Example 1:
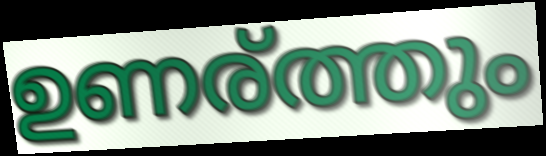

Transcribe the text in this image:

ഉണര്ത്തും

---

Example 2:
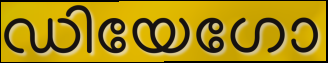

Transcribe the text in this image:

ഡിയേഗോ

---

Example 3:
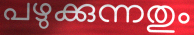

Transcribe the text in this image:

പഴുക്കുന്നതും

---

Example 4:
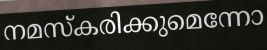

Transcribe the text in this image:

നമസ്കരിക്കുമെന്നോ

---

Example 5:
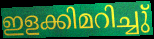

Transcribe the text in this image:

ഇളക്കിമറിച്ചു്